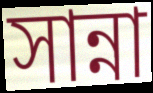
সান্না